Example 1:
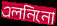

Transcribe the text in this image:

এলনিনো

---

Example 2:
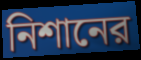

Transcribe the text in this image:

নিশানের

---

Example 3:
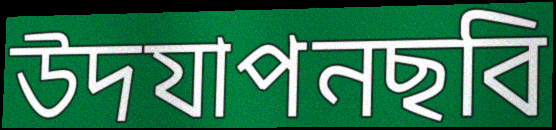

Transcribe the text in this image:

উদযাপনছবি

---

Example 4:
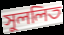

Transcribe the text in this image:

সুললিত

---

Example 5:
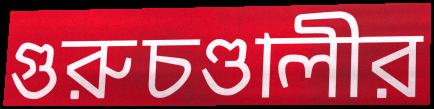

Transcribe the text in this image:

গুরুচণ্ডালীর